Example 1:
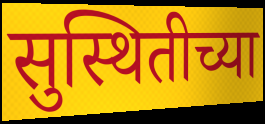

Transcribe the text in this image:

सुस्थितीच्या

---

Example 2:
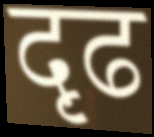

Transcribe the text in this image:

दृढ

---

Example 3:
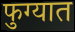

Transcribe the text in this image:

फुग्यात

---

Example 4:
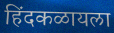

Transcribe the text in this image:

हिंदकळायला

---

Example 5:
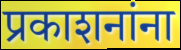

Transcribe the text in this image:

प्रकाशनांना